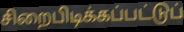
சிறைபிடிக்கப்பட்டுப்